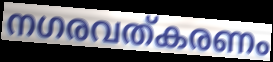
നഗരവത്കരണം